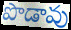
పొడావు